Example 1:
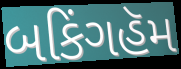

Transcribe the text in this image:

બકિંગહૅમ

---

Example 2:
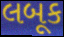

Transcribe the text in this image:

લબૂક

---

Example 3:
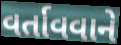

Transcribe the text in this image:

વર્તાવવાને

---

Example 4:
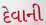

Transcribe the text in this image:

દેવાની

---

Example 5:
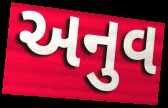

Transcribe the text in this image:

અનુવ